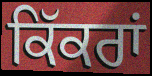
ਕਿੱਕਰਾਂ